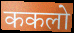
ककलो